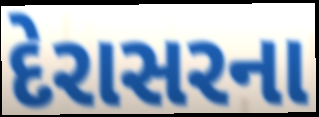
દેરાસરના